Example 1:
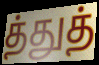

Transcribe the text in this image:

த்துத்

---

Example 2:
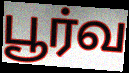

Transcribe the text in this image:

பூர்வ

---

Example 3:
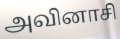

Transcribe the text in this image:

அவினாசி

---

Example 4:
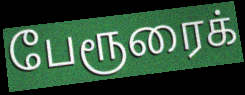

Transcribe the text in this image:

பேரூரைக்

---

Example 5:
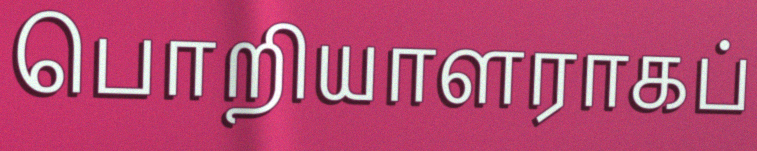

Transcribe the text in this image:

பொறியாளராகப்